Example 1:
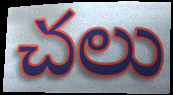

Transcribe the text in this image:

చలు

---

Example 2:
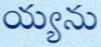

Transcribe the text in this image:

య్యను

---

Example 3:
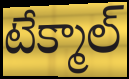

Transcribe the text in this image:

టేక్మాల్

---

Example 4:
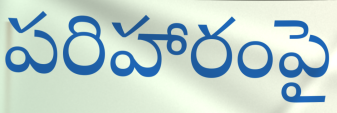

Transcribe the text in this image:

పరిహారంపై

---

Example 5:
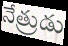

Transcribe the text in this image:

నేత్రుడు